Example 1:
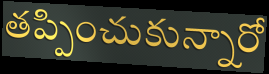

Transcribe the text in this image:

తప్పించుకున్నారో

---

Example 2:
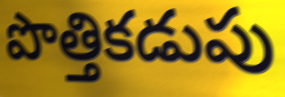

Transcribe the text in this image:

పొత్తికడుపు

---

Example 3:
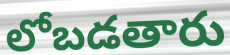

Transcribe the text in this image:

లోబడతారు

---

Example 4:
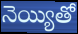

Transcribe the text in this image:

నెయ్యితో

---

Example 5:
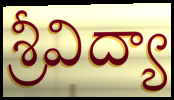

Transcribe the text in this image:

శ్రీవిద్యా